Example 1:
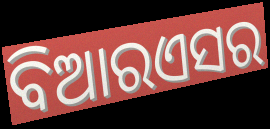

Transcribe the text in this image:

ବିଆରଏସର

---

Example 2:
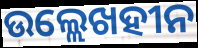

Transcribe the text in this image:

ଉଲ୍ଲେଖହୀନ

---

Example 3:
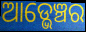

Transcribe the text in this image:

ଆଡ୍ଭେଞ୍ଚର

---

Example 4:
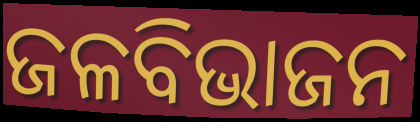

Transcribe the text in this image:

ଜଳବିଭାଜନ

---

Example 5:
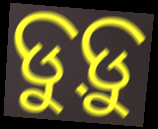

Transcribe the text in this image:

ଡୁଡ଼ୁ